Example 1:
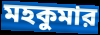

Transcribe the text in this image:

মহকুমার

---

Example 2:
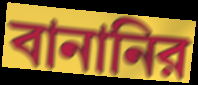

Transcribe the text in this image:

বানানির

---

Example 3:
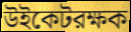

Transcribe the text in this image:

উইকেটরক্ষক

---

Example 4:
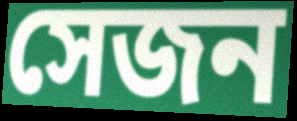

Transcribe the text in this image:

সেজন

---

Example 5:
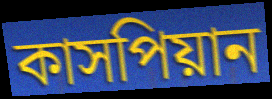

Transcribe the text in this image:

কাসপিয়ান